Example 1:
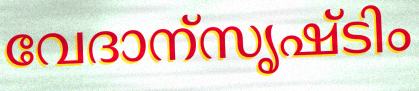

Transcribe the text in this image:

വേദാന്സൃഷ്ടിം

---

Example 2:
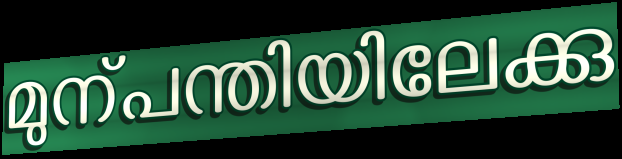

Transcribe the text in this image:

മുന്പന്തിയിലേക്കു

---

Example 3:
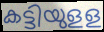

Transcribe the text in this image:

കട്ടിയുളള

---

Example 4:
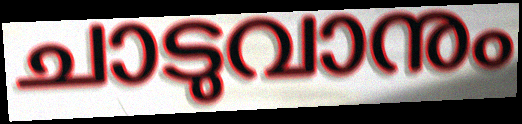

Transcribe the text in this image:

ചാടുവാനും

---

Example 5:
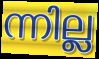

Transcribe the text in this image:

ന്നില്ല